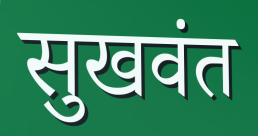
सुखवंत